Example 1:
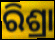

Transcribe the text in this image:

ରିଶ୍ରା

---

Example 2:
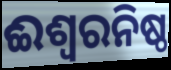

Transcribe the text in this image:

ଈଶ୍ୱରନିଷ୍ଠ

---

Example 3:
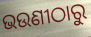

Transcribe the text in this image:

ଭଉଣୀଠାରୁ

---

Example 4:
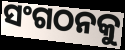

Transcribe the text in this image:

ସଂଗଠନକୁ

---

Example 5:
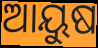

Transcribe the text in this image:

ଆୟୁଷ